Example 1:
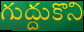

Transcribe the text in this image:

గుద్దుకొని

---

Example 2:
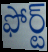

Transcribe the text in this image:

ఫోర్ట్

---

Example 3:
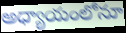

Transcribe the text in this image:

అధ్యాయంలోనూ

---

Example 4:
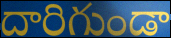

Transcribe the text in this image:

దారిగుండా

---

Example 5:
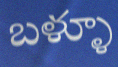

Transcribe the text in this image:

బళ్ళూ